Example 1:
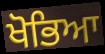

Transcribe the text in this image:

ਖੋਭਿਆ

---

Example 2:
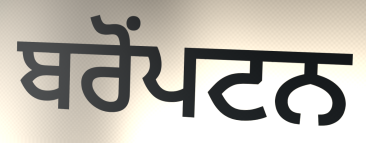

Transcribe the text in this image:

ਬਰੋਂਪਟਨ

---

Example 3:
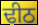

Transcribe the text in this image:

ਢੀਠ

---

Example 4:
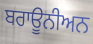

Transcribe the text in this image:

ਬਰਾਊਨੀਅਨ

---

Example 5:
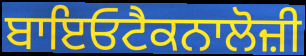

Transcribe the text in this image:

ਬਾਇਓਟੈਕਨਾਲੋਜ਼ੀ